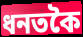
ধনতকৈ